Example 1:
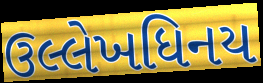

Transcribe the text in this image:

ઉલ્લેખધિનય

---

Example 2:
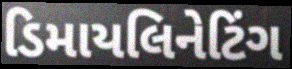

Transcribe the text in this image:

ડિમાયલિનેટિંગ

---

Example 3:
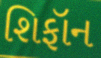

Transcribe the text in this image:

શિફૉન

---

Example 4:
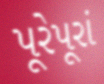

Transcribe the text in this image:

પૂરેપૂરાં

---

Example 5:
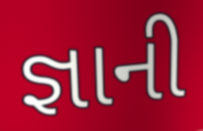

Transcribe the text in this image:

જ્ઞાની